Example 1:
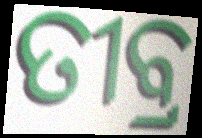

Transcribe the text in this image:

ତୀବ୍ର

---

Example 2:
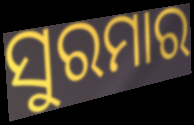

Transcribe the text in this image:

ସୁରମାର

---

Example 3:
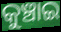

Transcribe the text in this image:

କୁଞ୍ଚାଇ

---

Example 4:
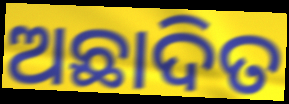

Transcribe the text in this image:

ଅଛାଦିତ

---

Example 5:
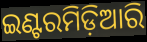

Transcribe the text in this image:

ଇଣ୍ଟରମିଡ଼ିଆରି